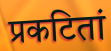
प्रकटितां